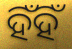
ହିଁହିଁ